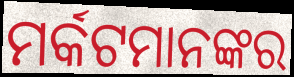
ମର୍କଟମାନଙ୍କର